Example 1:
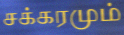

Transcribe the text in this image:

சக்கரமும்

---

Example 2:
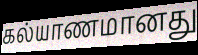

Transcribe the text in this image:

கல்யாணமானது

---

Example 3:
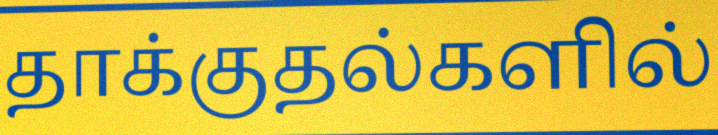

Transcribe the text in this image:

தாக்குதல்களில்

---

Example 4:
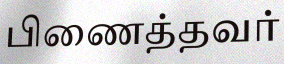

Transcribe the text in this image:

பிணைத்தவர்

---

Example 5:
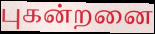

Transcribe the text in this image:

புகன்றனை